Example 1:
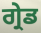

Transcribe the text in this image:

ਗ੍ਰੇਡ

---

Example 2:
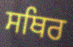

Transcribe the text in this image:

ਸਥਿਰ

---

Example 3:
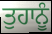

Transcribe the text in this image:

ਤੁਹਾਨੂੰ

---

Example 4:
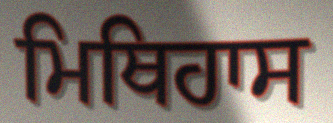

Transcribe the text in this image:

ਮਿਥਿਹਾਸ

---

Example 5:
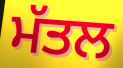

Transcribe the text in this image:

ਮੱਤਲ